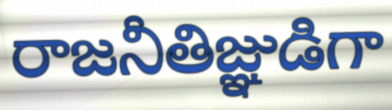
రాజనీతిజ్ఞుడిగా